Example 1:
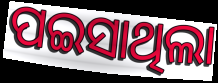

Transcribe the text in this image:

ପଇସାଥିଲା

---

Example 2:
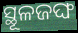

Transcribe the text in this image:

ସ୍ଥୂଳଜଙ୍ଘ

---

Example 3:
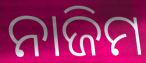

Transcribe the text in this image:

ନାଜିମ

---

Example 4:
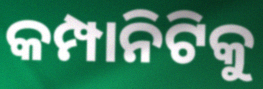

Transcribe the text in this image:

କମ୍ପାନିଟିକୁ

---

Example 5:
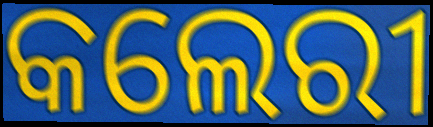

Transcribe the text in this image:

କଲେରୀ